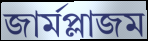
জার্মপ্লাজম